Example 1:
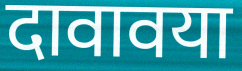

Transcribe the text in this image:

दावावया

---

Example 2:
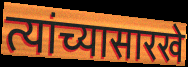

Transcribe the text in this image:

त्यांच्यासारखे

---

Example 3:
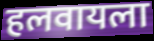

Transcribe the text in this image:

हलवायला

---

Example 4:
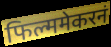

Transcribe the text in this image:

फिल्ममेकरनं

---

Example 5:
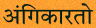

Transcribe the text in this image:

अंगिकारतो